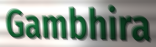
Gambhira